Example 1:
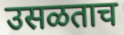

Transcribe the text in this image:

उसळताच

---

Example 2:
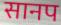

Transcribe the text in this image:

सानप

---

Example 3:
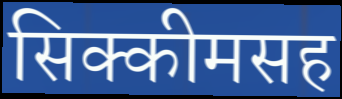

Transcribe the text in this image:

सिक्कीमसह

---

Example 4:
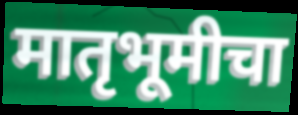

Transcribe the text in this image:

मातृभूमीचा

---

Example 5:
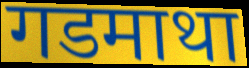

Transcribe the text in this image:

गडमाथा